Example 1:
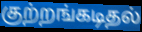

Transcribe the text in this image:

குற்றங்கடிதல்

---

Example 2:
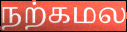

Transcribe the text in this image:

நற்கமல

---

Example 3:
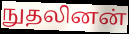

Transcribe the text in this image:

நுதலினன்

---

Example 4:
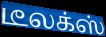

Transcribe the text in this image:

டீலக்ஸ்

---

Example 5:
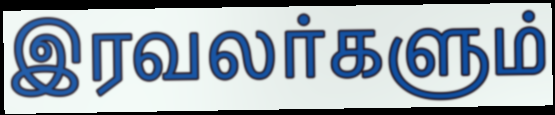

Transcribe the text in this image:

இரவலர்களும்